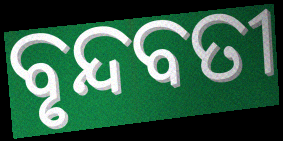
ବୃନ୍ଦବତୀ